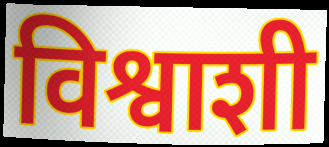
विश्वाशी